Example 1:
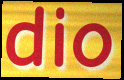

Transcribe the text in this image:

dio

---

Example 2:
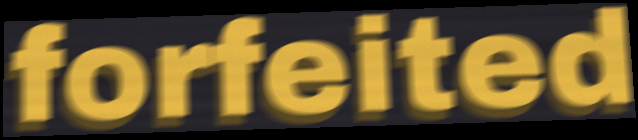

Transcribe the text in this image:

forfeited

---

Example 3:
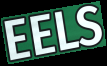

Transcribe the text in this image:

EELS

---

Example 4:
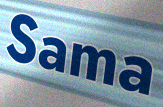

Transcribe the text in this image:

Sama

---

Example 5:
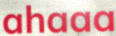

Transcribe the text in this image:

ahaaa